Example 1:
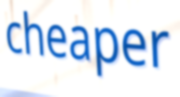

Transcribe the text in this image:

cheaper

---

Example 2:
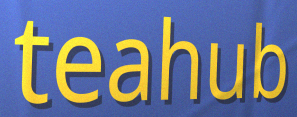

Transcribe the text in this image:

teahub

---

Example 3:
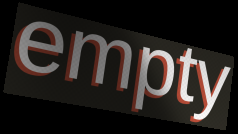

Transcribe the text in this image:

empty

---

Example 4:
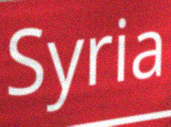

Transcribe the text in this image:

Syria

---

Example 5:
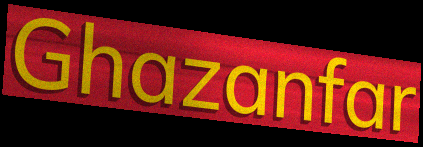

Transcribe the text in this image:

Ghazanfar